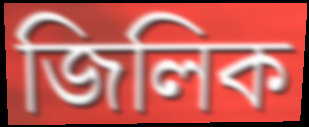
জিলিক